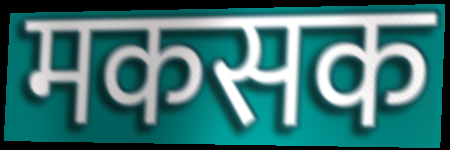
मकसक